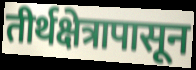
तीर्थक्षेत्रापासून